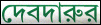
দেবদারুর